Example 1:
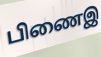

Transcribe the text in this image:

பிணைஇ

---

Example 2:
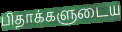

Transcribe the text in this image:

பிதாக்களுடைய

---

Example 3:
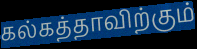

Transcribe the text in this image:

கல்கத்தாவிற்கும்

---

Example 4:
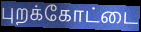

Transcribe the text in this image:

புறக்கோட்டை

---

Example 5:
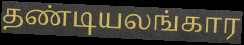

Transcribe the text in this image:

தண்டியலங்கார